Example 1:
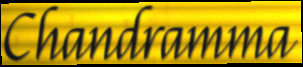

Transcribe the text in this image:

Chandramma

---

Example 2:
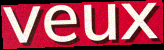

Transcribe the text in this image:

veux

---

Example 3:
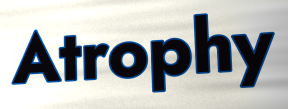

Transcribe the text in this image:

Atrophy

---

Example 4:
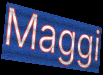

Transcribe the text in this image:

Maggi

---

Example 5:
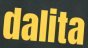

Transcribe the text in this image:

dalita